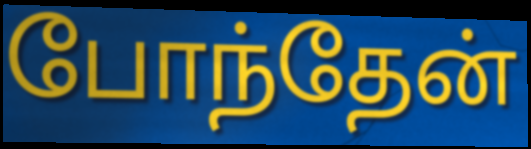
போந்தேன்